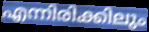
എന്നിരിക്കിലും